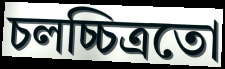
চলচ্চিত্ৰতো